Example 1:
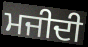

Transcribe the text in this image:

ਮਜੀਦੀ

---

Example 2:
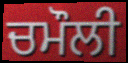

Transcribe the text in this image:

ਚਮੌਲੀ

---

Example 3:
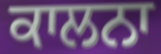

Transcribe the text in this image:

ਕਾਲਨਾ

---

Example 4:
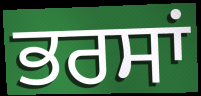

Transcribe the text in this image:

ਭਰਸਾਂ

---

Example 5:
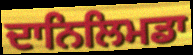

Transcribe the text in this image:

ਦਾਨਿਲਿਮਡਾ